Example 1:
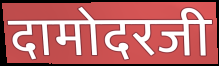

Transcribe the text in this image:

दामोदरजी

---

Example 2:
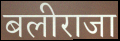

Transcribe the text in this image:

बलीराजा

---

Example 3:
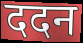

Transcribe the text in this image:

ददन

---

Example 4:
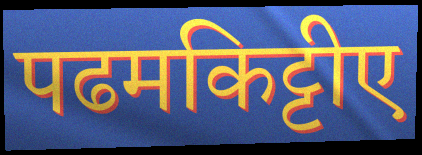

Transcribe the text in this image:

पढमकिट्टीए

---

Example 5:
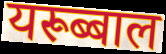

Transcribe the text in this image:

यरूब्बाल